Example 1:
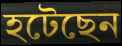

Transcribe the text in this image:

হটেছেন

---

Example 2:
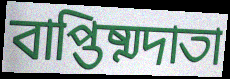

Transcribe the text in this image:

বাপ্তিষ্মদাতা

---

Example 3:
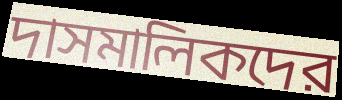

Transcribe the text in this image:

দাসমালিকদের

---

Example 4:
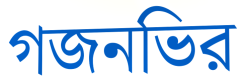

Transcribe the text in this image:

গজনভির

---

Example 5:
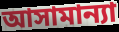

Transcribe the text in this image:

আসামান্যা